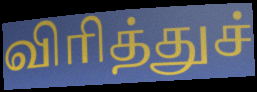
விரித்துச்